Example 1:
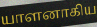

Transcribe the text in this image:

யாளனாகிய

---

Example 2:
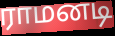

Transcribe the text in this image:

ராமனடி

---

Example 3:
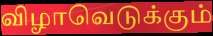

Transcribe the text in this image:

விழாவெடுக்கும்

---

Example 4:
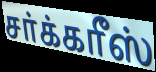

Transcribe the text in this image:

சர்க்கரீஸ்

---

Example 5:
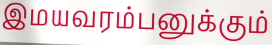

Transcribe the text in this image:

இமயவரம்பனுக்கும்